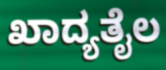
ಖಾದ್ಯತೈಲ